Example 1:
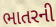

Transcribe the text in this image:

ભાતરની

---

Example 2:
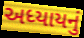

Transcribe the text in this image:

અધ્યાયનું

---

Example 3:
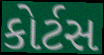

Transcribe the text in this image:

કોર્ટસ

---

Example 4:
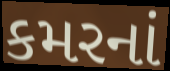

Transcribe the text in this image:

કમરનાં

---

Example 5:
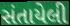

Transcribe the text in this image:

સંતાયેલી